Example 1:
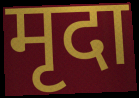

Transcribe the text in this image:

मृदा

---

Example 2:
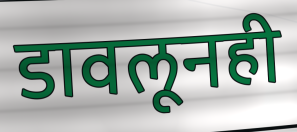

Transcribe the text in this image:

डावलूनही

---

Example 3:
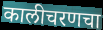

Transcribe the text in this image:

कालीचरणचा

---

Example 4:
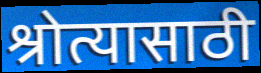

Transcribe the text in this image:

श्रोत्यासाठी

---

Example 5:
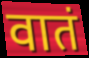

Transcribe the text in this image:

वातं